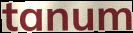
tanum